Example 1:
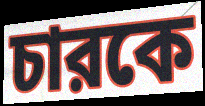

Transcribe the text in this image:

চারকে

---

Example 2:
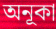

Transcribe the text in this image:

অনূকা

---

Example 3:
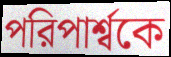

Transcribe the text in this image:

পরিপার্শ্বকে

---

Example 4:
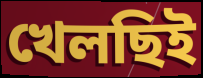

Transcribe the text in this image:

খেলছিই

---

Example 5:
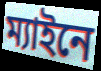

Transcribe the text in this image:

ম্যাইনে